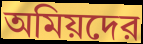
অমিয়দের